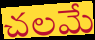
చలమే